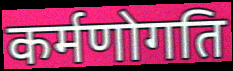
कर्मणोगति